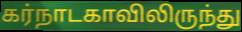
கர்நாடகாவிலிருந்து